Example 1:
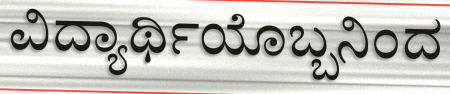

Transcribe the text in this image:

ವಿದ್ಯಾರ್ಥಿಯೊಬ್ಬನಿಂದ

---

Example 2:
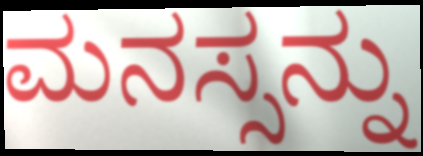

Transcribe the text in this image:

ಮನಸ್ಸನ್ನು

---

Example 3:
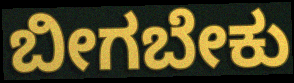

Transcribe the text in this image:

ಬೀಗಬೇಕು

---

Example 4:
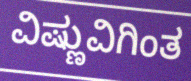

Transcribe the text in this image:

ವಿಷ್ಣುವಿಗಿಂತ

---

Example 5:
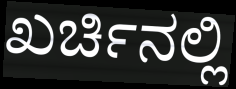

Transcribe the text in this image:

ಖರ್ಚಿನಲ್ಲಿ